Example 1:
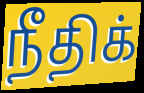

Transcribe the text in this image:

நீதிக்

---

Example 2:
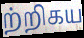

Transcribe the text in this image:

ற்றிகய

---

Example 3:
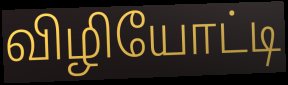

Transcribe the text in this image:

விழியோட்டி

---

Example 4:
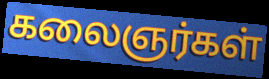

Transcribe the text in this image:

கலைஞர்கள்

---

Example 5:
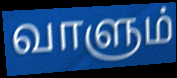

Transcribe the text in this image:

வாளும்